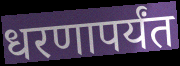
धरणापर्यंत